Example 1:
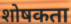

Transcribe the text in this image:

शोषकता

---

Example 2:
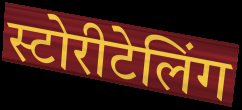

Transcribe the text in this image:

स्टोरीटेलिंग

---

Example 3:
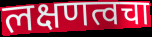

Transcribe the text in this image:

लक्षणत्वचा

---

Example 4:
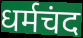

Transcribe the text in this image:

धर्मचंद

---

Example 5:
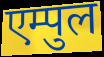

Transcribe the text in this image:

एम्पुल